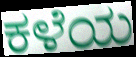
ಕಳೆಯ